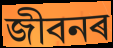
জীবনৰ